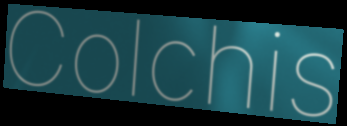
Colchis